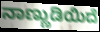
ನಾಣ್ಣುಡಿಯಿದೆ